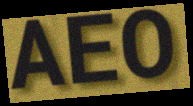
AEO